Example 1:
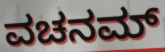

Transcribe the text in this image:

ವಚನಮ್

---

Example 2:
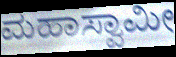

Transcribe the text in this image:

ಮಹಾಸ್ವಾಮೀ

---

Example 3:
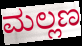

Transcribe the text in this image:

ಮಲ್ಲಣ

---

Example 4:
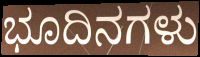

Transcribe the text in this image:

ಭೂದಿನಗಳು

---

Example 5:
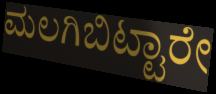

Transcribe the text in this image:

ಮಲಗಿಬಿಟ್ಟಾರೇ